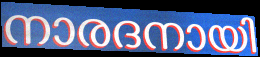
നാരദനായി